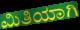
ಮಿತಿಯಾಗಿ